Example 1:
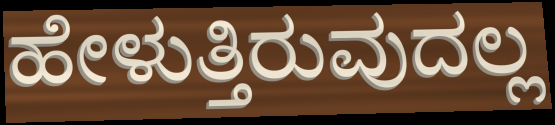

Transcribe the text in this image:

ಹೇಳುತ್ತಿರುವುದಲ್ಲ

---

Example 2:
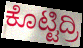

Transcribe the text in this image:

ಕೊಟ್ಟಿದ್ರಿ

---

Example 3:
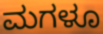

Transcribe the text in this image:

ಮಗಳೂ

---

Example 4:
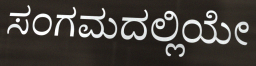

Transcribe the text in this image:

ಸಂಗಮದಲ್ಲಿಯೇ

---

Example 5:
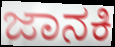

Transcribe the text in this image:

ಜಾನಕಿ